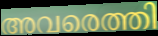
അവരെത്തി